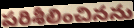
పరిశీలించినను